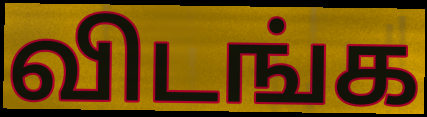
விடங்க